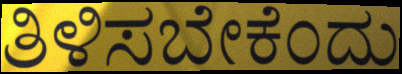
ತಿಳಿಸಬೇಕೆಂದು